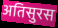
अतिसुरस